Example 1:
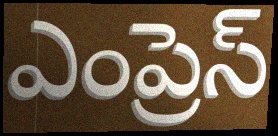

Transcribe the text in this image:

ఎంప్రెస్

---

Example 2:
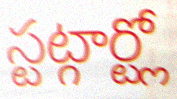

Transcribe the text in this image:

స్టట్గార్ట్లో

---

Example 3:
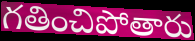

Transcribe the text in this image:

గతించిపోతారు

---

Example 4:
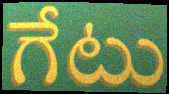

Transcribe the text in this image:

గేటు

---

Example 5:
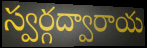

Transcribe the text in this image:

స్వర్గద్వారాయ